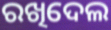
ରଖିଦେଲ